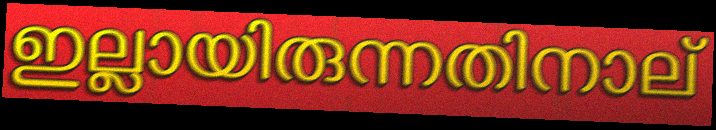
ഇല്ലായിരുന്നതിനാല്